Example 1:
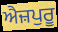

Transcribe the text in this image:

ਐਜ਼ਪੁਰੂ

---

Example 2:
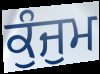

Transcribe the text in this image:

ਕੁੰਜੁਮ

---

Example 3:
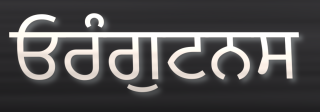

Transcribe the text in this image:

ਓਰੰਗੁਟਨਸ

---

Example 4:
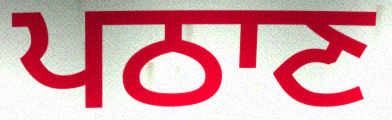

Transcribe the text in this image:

ਪਠਾਣ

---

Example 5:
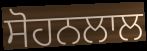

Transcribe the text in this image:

ਸੋਹਨਲਾਲ